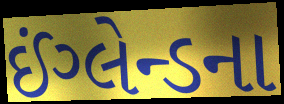
ઈંગ્લેન્ડના